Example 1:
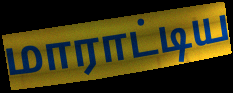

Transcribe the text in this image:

மாராட்டிய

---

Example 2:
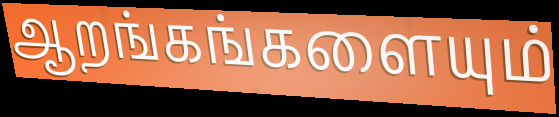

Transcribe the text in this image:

ஆறங்கங்களையும்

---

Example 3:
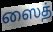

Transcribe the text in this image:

ஸைத்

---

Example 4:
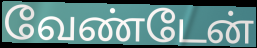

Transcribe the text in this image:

வேண்டேன்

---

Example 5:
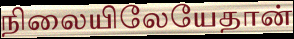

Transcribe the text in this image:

நிலையிலேயேதான்